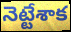
నెట్టేశాక